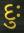
દુઃ